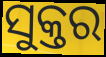
ସୁକ୍ତର